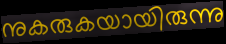
നുകരുകയായിരുന്നു